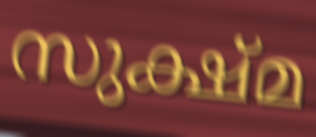
സുക്ഷ്മ